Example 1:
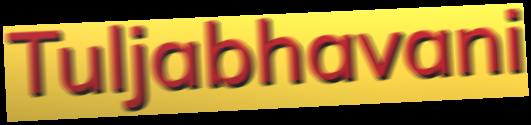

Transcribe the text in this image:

Tuljabhavani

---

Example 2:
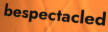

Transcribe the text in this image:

bespectacled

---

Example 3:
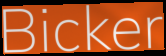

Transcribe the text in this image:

Bicker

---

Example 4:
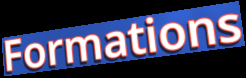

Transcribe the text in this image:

Formations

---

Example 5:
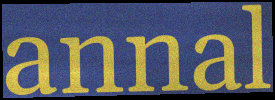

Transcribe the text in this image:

annal